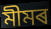
মীমৰ